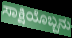
ಸಾಕ್ಷಿಯೊಬ್ಬನು